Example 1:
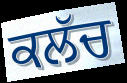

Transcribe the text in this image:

ਕਲੱਚ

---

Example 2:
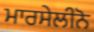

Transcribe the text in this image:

ਮਾਰਸੇਲੀਨੋ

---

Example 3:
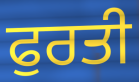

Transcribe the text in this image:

ਫੁਰਤੀ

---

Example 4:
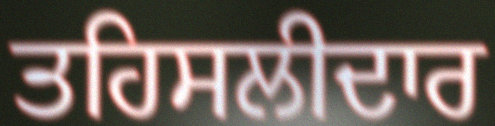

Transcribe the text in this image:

ਤਹਿਸਲੀਦਾਰ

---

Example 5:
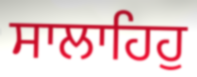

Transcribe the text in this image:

ਸਾਲਾਹਿਹੁ